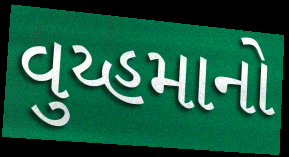
વુય્હમાનો